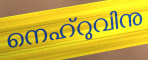
നെഹ്റുവിനു